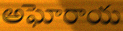
అఘోరాయ